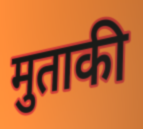
मुताकी